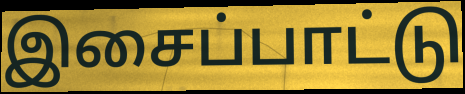
இசைப்பாட்டு